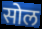
सोल